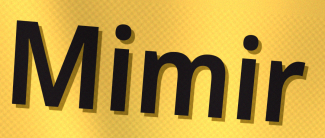
Mimir